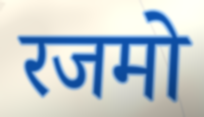
रजमो